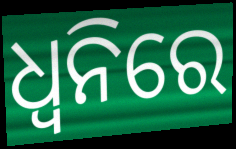
ଧ୍ୱନିରେ